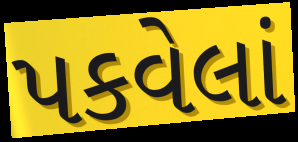
પકવેલાં